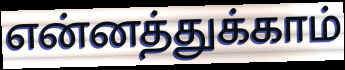
என்னத்துக்காம்